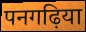
पनगढ़िया